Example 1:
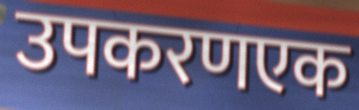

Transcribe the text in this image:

उपकरणएक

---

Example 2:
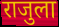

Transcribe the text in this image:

राजुला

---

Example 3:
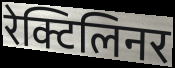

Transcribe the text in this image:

रेक्टिलिनर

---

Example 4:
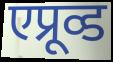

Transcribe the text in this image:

एप्रूव्ड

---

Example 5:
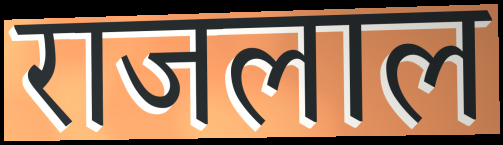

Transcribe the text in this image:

राजलाल